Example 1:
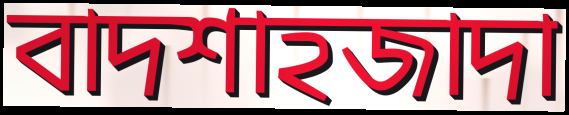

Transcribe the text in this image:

বাদশাহজাদা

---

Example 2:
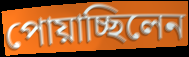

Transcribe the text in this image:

পোয়াচ্ছিলেন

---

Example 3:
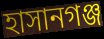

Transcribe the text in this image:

হাসানগঞ্জ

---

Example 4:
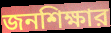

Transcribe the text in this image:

জনশিক্ষার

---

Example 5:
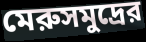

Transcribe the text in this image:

মেরুসমুদ্রের